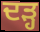
ਦੜ੍ਹ